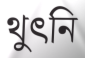
থুৎনি